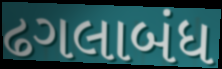
ઢગલાબંધ